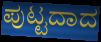
ಪುಟ್ಟದಾದ